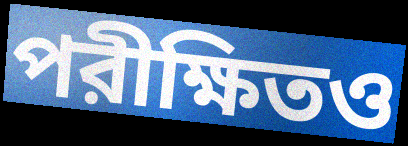
পরীক্ষিতও